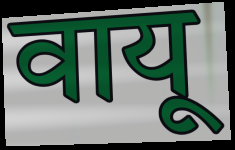
वायू